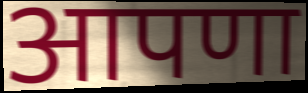
आपणा